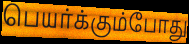
பெயர்க்கும்போது